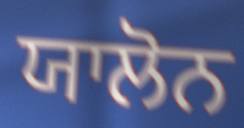
ਯਾਲੋਨ